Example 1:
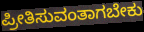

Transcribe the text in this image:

ಪ್ರೀತಿಸುವಂತಾಗಬೇಕು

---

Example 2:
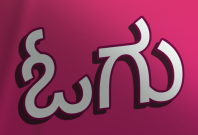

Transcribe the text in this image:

ಓಗು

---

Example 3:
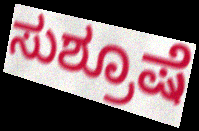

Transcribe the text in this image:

ಸುಶ್ರೂಷೆ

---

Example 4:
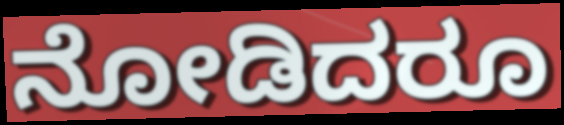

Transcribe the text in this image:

ನೋಡಿದರೂ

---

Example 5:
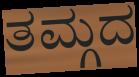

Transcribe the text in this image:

ತಮ್ಗದ